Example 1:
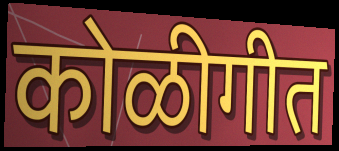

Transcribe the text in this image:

कोळीगीत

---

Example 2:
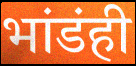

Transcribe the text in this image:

भांडंही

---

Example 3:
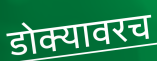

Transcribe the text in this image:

डोक्यावरच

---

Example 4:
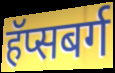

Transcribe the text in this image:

हॅप्सबर्ग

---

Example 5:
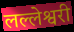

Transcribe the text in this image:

लल्लेश्वरी